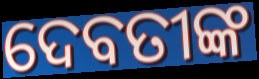
ଦେବତୀଙ୍କ